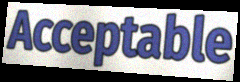
Acceptable